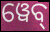
ୱେବ୍